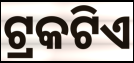
ଟ୍ରକଟିଏ